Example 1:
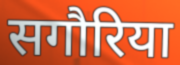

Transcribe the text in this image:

सगौरिया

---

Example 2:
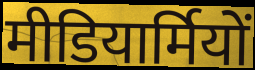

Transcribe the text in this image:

मीडियार्मियों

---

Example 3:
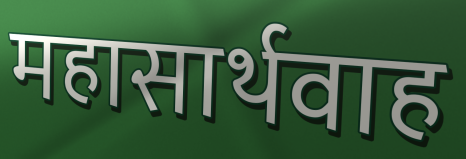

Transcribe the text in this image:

महासार्थवाह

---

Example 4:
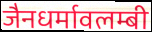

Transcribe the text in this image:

जैनधर्मावलम्बी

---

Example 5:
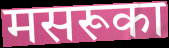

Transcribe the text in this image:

मसरूका